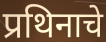
प्रथिनाचे